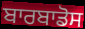
ਬਾਰਬਾਡੋਸ